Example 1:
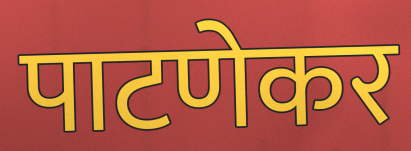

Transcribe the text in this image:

पाटणेकर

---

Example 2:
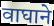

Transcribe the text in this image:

वाघाने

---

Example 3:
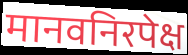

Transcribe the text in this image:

मानवनिरपेक्ष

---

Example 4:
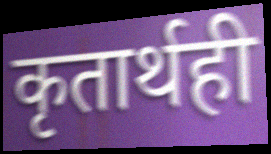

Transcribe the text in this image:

कृतार्थही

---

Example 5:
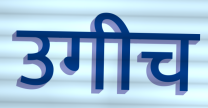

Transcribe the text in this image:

उगीच